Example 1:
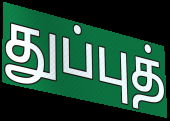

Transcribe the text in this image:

துப்புத்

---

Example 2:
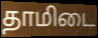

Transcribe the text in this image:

தாமிடை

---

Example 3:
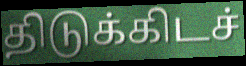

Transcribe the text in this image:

திடுக்கிடச்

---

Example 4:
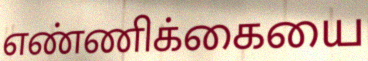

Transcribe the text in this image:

எண்ணிக்கையை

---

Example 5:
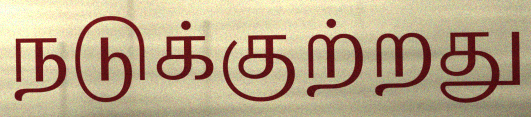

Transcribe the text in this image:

நடுக்குற்றது